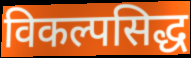
विकल्पसिद्ध